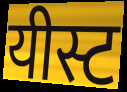
यीस्ट